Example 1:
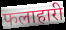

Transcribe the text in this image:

फलाहारी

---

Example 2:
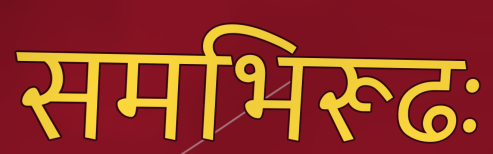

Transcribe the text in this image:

समभिरूढः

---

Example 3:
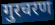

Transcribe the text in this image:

गुरचरण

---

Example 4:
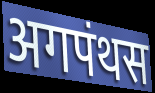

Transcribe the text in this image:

अगपंथस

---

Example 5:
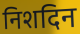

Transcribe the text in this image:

निशदिन